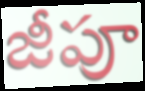
జీపూ